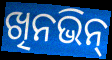
ଖିନଭିନ୍